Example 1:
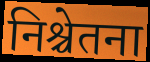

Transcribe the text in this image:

निश्चेतना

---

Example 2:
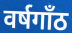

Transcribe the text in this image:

वर्षगाँठ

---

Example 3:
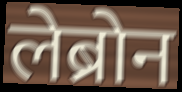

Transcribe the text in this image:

लेब्रोन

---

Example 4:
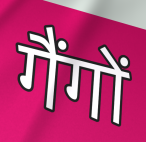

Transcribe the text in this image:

गैंगों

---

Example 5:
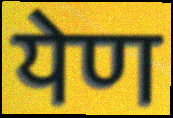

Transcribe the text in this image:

येण